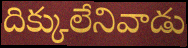
దిక్కులేనివాడు